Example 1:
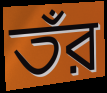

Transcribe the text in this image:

তঁর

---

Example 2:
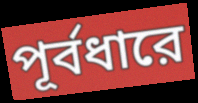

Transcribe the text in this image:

পূর্বধারে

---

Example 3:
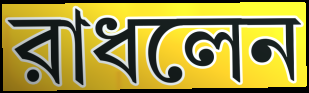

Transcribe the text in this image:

রাধলেন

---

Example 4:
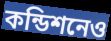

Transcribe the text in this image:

কন্ডিশনেও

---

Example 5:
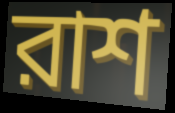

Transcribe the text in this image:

রাশ